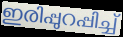
ഇരിപ്പുറപ്പിച്ച്